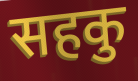
सहकु